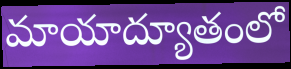
మాయాద్యూతంలో